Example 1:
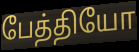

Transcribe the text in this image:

பேத்தியோ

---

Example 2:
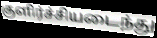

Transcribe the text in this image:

குளிர்ச்சியடைந்து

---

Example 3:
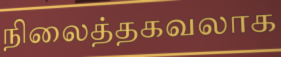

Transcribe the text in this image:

நிலைத்தகவலாக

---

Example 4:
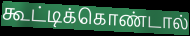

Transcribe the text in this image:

கூட்டிக்கொண்டால்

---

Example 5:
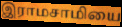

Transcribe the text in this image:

இராமசாமியை